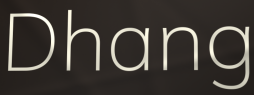
Dhang